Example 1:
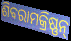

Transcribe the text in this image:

ଶିବରାମକ୍ରିଷ୍ଣନ୍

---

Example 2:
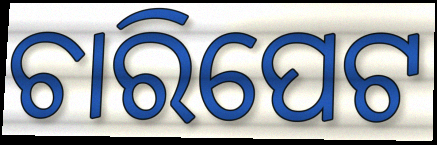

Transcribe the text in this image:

ଚାରିପେଟ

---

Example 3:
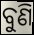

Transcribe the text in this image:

ବୁଣି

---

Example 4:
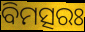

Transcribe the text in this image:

ବିମତ୍ସରଃ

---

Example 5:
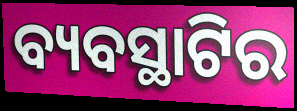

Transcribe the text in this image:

ବ୍ୟବସ୍ଥାଟିର